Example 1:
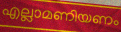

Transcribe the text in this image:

എല്ലാമണിയണം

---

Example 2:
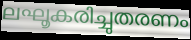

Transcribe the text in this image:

ലഘൂകരിച്ചുതരണം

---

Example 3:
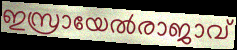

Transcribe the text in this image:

ഇസ്രായേൽരാജാവ്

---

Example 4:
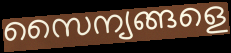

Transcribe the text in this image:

സൈന്യങ്ങളെ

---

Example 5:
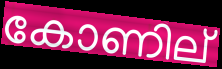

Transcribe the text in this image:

കോണില്